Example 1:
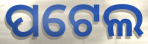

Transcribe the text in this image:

ପଟେଲ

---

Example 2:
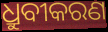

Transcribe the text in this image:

ଧ୍ରୁବୀକରଣ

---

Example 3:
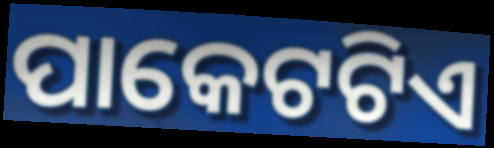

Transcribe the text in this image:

ପାକେଟଟିଏ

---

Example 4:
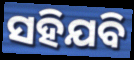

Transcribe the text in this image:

ସହିଯବି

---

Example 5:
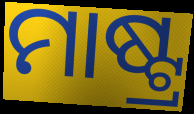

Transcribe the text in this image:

ମାଷ୍ଟ୍ର